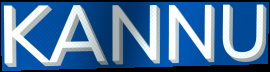
KANNU